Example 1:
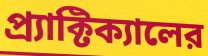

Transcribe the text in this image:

প্র্যাক্টিক্যালের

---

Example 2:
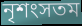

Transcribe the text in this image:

নৃশংসতম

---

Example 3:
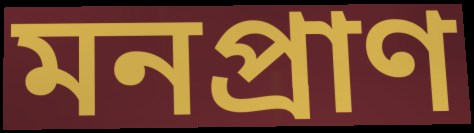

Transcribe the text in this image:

মনপ্রাণ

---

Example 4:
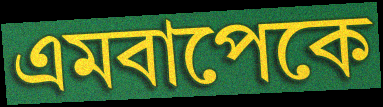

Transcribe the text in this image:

এমবাপেকে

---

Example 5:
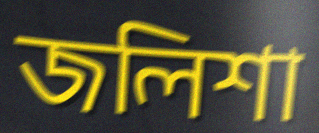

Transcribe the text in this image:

জলিশা